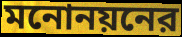
মনোনয়নের